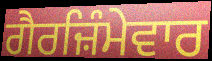
ਗੈਰਜ਼ਿੰਮੇਵਾਰ